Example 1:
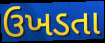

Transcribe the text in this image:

ઉખડતા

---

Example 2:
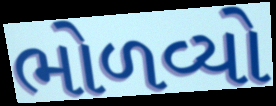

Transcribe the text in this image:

ભોળવ્યો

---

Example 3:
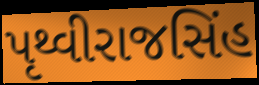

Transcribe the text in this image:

પૃથ્વીરાજસિંહ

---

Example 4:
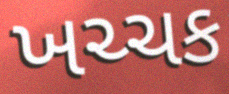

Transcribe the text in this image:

ખચ્ચક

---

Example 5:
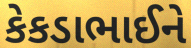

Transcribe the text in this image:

કેકડાભાઈને